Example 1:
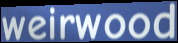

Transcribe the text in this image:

weirwood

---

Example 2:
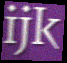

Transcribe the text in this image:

ijk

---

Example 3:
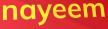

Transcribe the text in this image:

nayeem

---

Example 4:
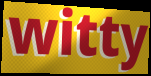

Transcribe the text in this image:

witty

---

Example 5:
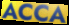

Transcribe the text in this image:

ACCA